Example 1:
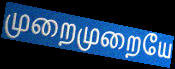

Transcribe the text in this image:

முறைமுறையே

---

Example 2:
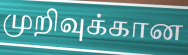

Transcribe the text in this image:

முறிவுக்கான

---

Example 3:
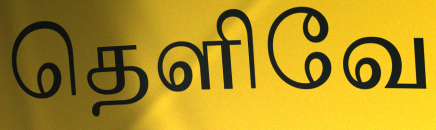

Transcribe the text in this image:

தெளிவே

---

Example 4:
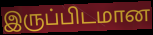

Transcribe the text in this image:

இருப்பிடமான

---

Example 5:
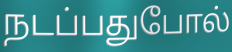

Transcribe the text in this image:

நடப்பதுபோல்